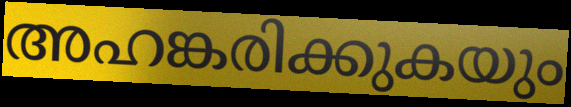
അഹങ്കരിക്കുകയും